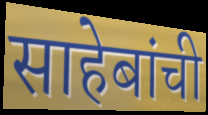
साहेबांची